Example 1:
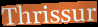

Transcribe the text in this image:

Thrissur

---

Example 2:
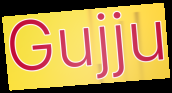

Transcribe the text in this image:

Gujju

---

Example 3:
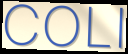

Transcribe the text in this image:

COLI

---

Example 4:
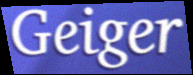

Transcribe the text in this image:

Geiger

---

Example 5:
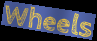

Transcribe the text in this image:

Wheels